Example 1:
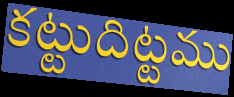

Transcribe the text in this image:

కట్టుదిట్టము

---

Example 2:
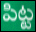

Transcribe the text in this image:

పిట్ట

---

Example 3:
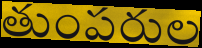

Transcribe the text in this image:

తుంపరుల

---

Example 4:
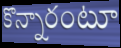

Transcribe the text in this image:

కొన్నారంటూ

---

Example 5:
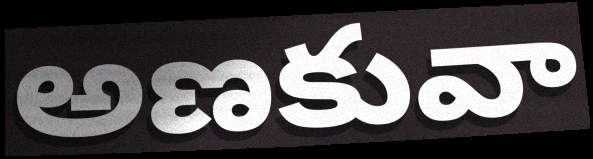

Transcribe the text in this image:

అణకువా